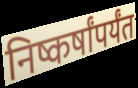
निष्कर्षांपर्यंत